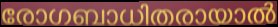
രോഗബാധിതരായാൽ